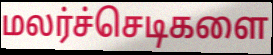
மலர்ச்செடிகளை